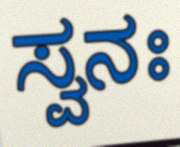
ಸ್ವನಃ